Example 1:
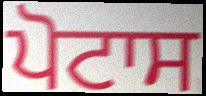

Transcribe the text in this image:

ਪੋਟਾਸ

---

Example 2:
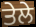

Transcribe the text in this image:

ਤੇਲੇ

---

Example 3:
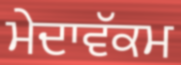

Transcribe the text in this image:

ਮੇਦਾਵੱਕਮ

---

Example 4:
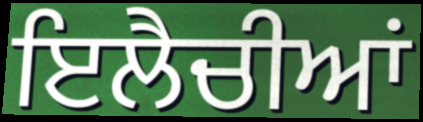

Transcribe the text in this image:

ਇਲੈਚੀਆਂ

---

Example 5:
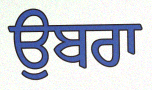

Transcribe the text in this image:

ਉਬਰਾ